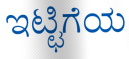
ಇಟ್ಟಿಗೆಯ